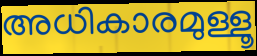
അധികാരമുള്ളൂ